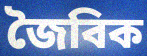
জৈবিক